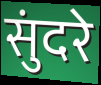
सुंदरे